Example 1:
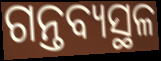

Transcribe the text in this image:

ଗନ୍ତବ୍ୟସ୍ଥଳ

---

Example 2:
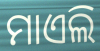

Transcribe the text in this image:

ମାଏଲି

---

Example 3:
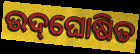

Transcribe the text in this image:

ଉଦ୍‌ଘୋଷିତ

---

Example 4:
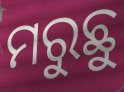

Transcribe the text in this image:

ମରୁଛୁ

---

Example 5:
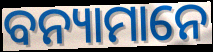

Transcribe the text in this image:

ବନ୍ୟାମାନେ